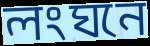
লংঘনে